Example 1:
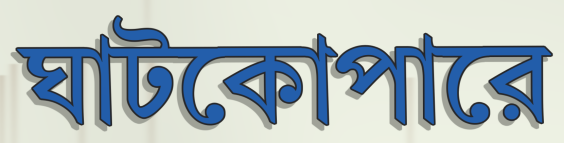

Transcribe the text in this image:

ঘাটকোপারে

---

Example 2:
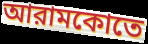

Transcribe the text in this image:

আরামকোতে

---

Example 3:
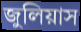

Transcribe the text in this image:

জুলিয়াস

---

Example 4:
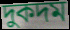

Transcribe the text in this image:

দুকদম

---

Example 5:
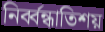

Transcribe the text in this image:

নির্ব্বন্ধাতিশয়